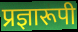
प्रज्ञारूपी